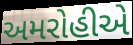
અમરોહીએ